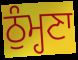
ਠੁੰਮ੍ਹਣਾ